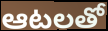
ఆటలతో